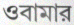
ওবামার